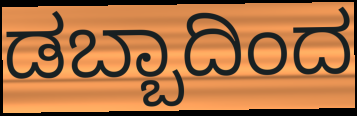
ಡಬ್ಬಾದಿಂದ